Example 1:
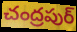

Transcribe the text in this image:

చంద్రపుర్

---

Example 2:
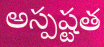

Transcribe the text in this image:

అస్పష్టత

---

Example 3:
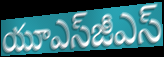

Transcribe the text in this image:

యూఎస్‌జీఎస్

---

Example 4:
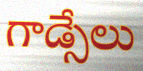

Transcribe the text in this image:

గాడ్సేలు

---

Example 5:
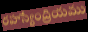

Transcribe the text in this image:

రహస్యేంద్రియము